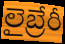
లైబ్రేరీ